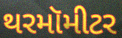
થરમૉમીટર